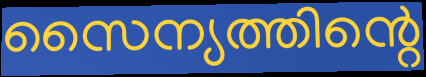
സൈന്യത്തിന്റെ